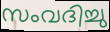
സംവദിച്ചു